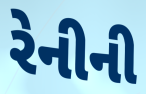
રેનીની